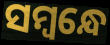
ସମ୍ବନ୍ଧେ